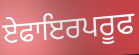
ਏਫਾਇਰਪਰੂਫ